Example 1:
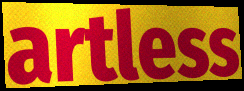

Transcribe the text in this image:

artless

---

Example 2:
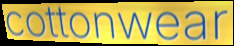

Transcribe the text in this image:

cottonwear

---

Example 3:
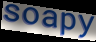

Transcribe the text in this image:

soapy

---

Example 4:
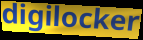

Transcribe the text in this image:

digilocker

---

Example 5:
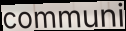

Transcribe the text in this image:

communi